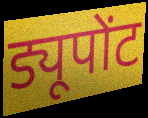
ड्यूपोंट